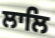
ਲਾਲਿ